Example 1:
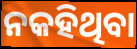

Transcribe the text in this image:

ନକହିଥିବା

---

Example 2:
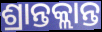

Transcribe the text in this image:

ଶ୍ରାନ୍ତକ୍ଲାନ୍ତ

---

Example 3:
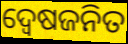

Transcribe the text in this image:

ଦ୍ଵେଷଜନିତ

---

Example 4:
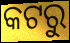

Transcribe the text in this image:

କଟରୁ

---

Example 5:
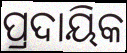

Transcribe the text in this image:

ପ୍ରଦାୟିକ